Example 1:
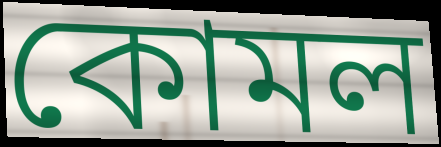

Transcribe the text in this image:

কোমল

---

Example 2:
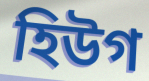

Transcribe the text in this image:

হিউগ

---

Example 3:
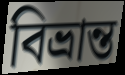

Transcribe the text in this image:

বিভ্ৰান্ত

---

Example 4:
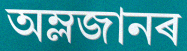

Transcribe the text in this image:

অম্লজানৰ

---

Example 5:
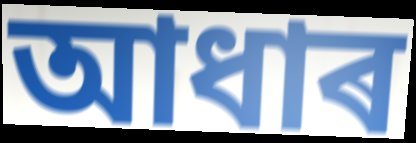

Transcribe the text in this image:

আধাৰ